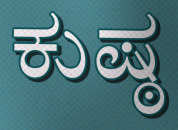
ಕುಷ್ಠ